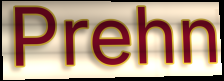
Prehn